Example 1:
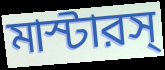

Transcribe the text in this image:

মাস্টারস্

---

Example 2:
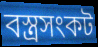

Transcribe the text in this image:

বস্ত্রসংকট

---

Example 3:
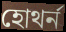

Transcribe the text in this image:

হোথর্ন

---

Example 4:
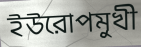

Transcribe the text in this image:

ইউরোপমুখী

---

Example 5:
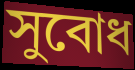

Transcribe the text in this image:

সুবোধ